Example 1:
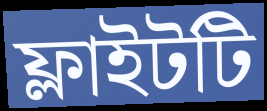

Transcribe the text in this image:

ফ্লাইটটি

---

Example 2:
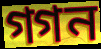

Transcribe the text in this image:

গগন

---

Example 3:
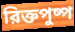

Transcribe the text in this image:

রিক্তপুষ্প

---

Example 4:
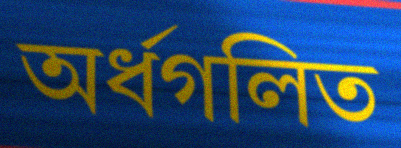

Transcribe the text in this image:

অর্ধগলিত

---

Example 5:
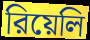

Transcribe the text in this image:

রিয়েলি